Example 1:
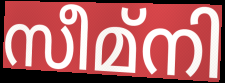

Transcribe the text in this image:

സീമ്നി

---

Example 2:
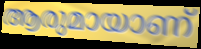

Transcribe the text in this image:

ആരുമായാണ്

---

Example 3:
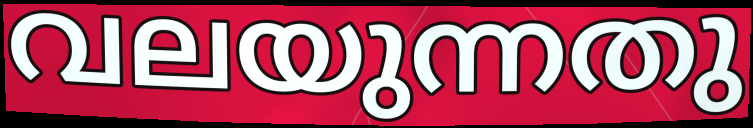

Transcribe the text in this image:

വലയുന്നതു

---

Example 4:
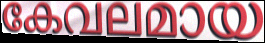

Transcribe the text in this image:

കേവലമായ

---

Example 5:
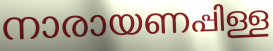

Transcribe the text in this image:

നാരായണപ്പിള്ള